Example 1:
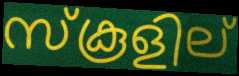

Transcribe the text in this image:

സ്കൂളില്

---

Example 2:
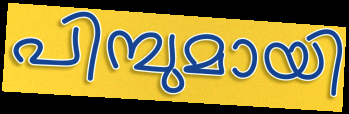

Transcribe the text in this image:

പിമ്പുമായി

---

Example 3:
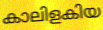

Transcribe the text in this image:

കാലിളകിയ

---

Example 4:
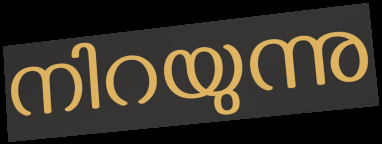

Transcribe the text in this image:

നിറയുന്നു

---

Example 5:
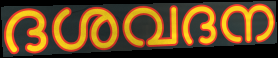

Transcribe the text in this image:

ദശവദന